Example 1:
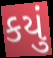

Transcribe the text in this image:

કયું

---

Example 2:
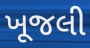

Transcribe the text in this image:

ખૂજલી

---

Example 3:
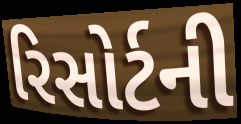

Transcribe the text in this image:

રિસોર્ટની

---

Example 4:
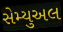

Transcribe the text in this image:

સેમ્યુઅલ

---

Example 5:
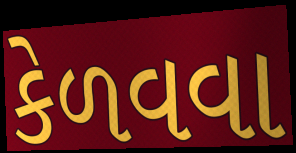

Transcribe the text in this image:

કેળવવા